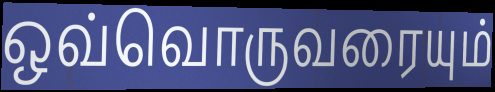
ஒவ்வொருவரையும்